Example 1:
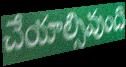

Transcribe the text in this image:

చేయాల్సివుంది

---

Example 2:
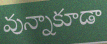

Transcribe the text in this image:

వున్నాకూడా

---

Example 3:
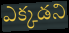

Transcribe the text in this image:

ఎక్కడని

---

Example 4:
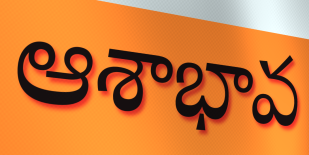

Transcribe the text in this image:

ఆశాభావ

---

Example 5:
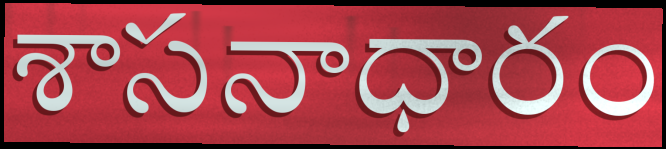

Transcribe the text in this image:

శాసనాధారం